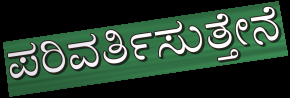
ಪರಿವರ್ತಿಸುತ್ತೇನೆ